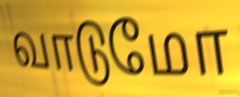
வாடுமோ